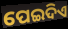
ପେଇଦିଏ